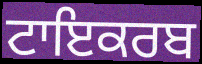
ਟਾਇਕਰਬ